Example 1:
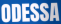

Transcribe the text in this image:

ODESSA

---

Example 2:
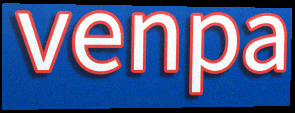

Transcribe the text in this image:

venpa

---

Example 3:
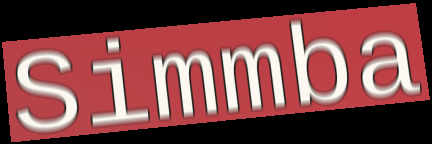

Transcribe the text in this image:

Simmba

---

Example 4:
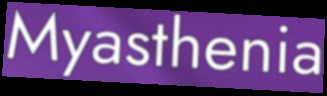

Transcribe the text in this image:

Myasthenia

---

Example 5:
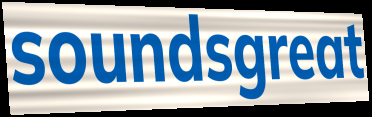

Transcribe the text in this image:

soundsgreat